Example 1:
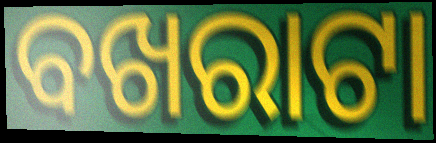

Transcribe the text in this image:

ବଖରାଟା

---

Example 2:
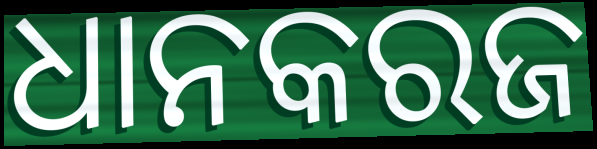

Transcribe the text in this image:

ଧାନକରଜ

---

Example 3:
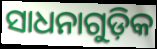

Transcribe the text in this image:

ସାଧନାଗୁଡ଼ିକ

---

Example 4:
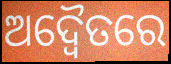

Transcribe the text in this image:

ଅଦ୍ୱୈତରେ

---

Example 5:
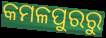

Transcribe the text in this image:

କମଳପୁରରୁ